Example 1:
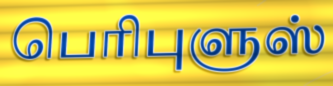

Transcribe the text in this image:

பெரிபுளுஸ்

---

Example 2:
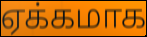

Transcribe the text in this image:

ஏக்கமாக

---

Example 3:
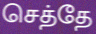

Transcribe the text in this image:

செத்தே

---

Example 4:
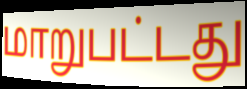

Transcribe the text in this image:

மாறுபட்டது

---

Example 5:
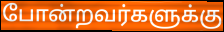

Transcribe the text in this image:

போன்றவர்களுக்கு